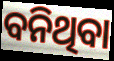
ବନିଥିବା